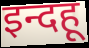
इन्दहू